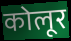
कोलूर